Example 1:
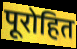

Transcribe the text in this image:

पूरोहित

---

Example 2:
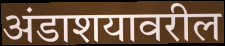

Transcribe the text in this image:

अंडाशयावरील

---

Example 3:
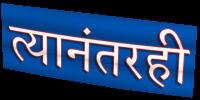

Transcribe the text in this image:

त्यानंतरही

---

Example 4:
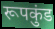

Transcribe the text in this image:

रूपकुंड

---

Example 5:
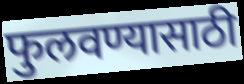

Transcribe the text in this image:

फुलवण्यासाठी